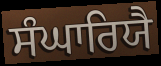
ਸੰਘਾਰਿਯੈ